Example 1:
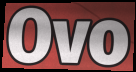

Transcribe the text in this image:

Ovo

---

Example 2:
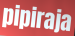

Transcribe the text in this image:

pipiraja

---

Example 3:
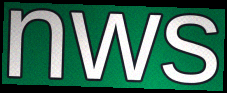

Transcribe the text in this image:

nws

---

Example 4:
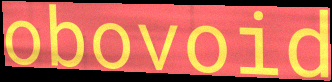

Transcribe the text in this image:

obovoid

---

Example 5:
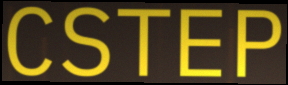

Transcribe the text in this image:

CSTEP